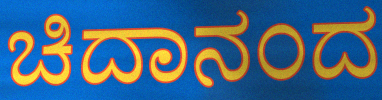
ಚಿದಾನಂದ